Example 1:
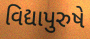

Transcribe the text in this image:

વિદ્યાપુરુષે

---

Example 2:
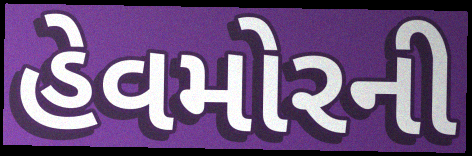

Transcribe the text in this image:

હેવમોરની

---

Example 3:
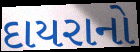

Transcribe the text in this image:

દાયરાનો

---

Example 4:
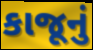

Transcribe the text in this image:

કાજૂનું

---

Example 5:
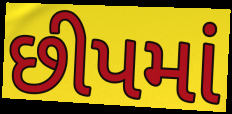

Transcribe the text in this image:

છીપમાં